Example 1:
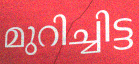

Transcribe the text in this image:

മുറിച്ചിട്ട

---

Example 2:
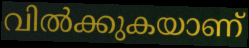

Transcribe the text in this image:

വിൽക്കുകയാണ്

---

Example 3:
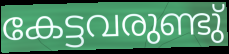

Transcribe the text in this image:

കേട്ടവരുണ്ടു്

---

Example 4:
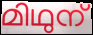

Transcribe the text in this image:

മിഥുന്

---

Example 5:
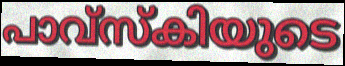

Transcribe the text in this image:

പാവ്സ്കിയുടെ